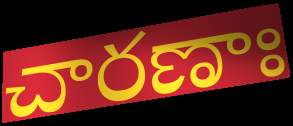
చారణాః